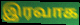
இரவாக